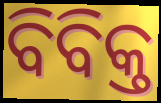
ବିବିକ୍ତ